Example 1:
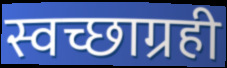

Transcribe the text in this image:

स्वच्छाग्रही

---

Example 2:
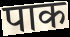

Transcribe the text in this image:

पाक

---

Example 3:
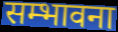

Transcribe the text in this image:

सम्भावना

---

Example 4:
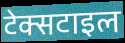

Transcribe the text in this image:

टेक्सटाइल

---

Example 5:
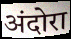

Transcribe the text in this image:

अंदोरा